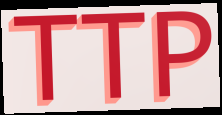
TTP